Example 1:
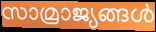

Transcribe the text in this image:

സാമ്രാജ്യങ്ങൾ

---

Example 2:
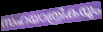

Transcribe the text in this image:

സഹയാത്രികയും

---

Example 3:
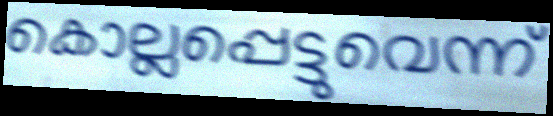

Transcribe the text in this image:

കൊല്ലപ്പെട്ടുവെന്ന്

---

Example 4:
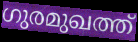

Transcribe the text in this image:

ഗുരമുഖത്ത്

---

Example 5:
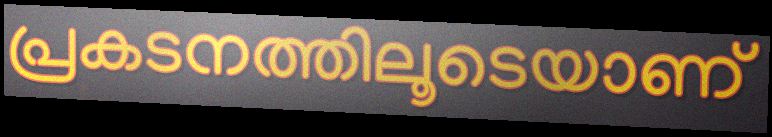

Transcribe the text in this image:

പ്രകടനത്തിലൂടെയാണ്